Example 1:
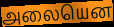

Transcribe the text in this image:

அலையென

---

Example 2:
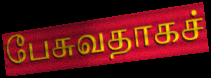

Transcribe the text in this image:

பேசுவதாகச்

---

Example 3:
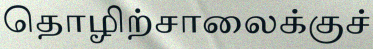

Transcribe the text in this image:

தொழிற்சாலைக்குச்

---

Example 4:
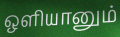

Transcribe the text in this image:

ஒளியானும்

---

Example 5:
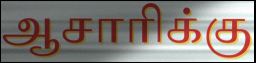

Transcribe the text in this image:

ஆசாரிக்கு